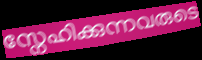
സ്നേഹിക്കുന്നവരുടെ